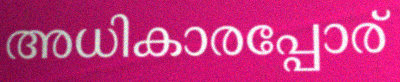
അധികാരപ്പോര്